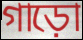
গাড়ো